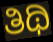
ತಿಥಿ